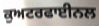
ਕੁਅਟਰਫਾਈਨਲ